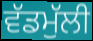
ਵੱਡਮੁੱਲੀ